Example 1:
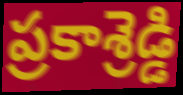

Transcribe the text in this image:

ప్రకాశ్రెడ్డి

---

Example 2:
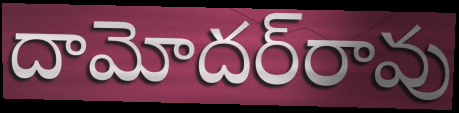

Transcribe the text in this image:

దామోదర్‌రావు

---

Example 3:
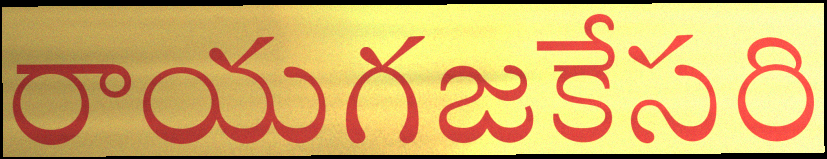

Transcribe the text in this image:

రాయగజకేసరి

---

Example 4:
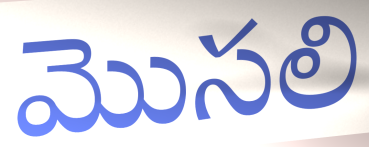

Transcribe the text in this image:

మొసలి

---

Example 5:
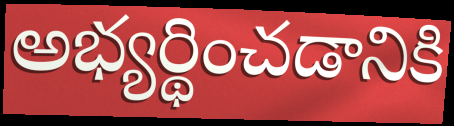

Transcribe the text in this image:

అభ్యర్థించడానికి